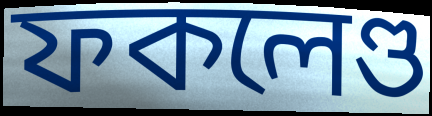
ফকলেণ্ড